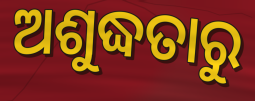
ଅଶୁଦ୍ଧତାରୁ